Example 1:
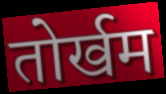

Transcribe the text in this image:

तोर्खम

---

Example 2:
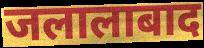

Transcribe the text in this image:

जलालाबाद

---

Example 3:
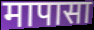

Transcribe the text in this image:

मापासा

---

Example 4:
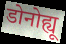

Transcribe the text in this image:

डोनोह्यू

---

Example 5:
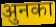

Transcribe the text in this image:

अुनका